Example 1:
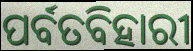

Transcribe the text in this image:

ପର୍ବତବିହାରୀ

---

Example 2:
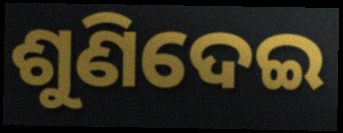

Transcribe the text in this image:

ଶୁଣିଦେଇ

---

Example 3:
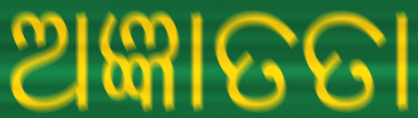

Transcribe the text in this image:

ଅଜ୍ଞାତତା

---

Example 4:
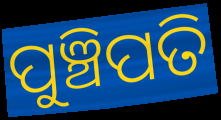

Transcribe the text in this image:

ପୁଞ୍ଚିପତି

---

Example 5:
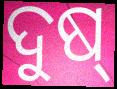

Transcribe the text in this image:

ଦୁଷ୍